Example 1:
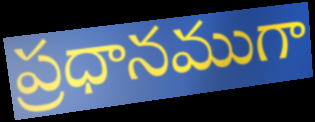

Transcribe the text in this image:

ప్రధానముగా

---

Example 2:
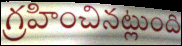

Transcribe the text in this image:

గ్రహించినట్లుంది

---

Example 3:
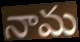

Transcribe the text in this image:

నామ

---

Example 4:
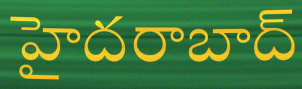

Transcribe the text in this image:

హైదరాబాద్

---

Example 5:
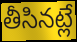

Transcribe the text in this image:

తీసినట్లే